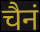
चैनं